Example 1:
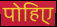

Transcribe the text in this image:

पोहिए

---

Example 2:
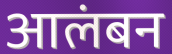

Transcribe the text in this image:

आलंबन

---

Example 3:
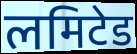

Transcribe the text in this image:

लमिटेड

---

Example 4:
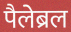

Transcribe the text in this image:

पैलेब्रल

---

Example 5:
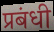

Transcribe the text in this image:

प्रबंधी